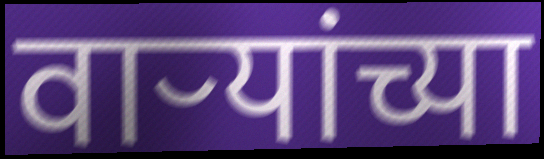
वाऱ्यांच्या